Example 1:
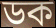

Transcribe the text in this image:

ডক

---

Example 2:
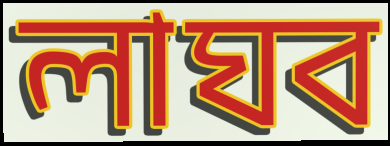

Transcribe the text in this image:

লাঘব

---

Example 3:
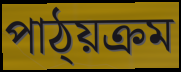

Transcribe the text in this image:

পাঠ্য়ক্ৰম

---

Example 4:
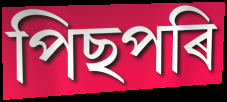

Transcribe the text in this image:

পিছপৰি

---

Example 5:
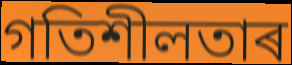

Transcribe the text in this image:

গতিশীলতাৰ